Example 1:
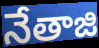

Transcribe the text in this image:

నేతాజి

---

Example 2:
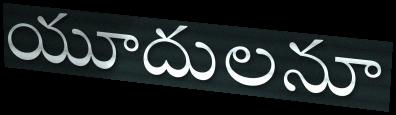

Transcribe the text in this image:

యూదులనూ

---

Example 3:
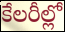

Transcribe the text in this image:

కేలరీల్లో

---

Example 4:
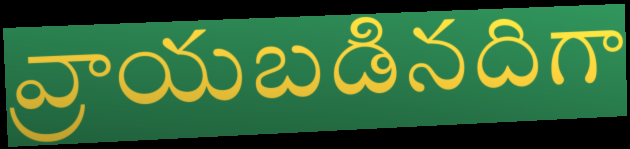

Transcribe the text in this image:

వ్రాయబడినదిగా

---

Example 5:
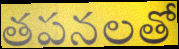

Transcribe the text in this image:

తపనలతో